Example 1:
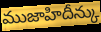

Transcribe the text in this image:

ముజాహిదీన్కు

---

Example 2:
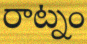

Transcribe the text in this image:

రాట్నం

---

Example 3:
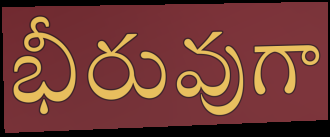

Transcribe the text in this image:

భీరువుగా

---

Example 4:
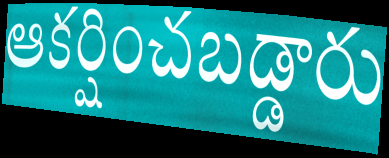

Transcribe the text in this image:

ఆకర్షించబడ్డారు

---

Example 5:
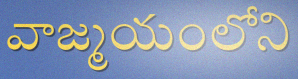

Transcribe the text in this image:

వాజ్మయంలోని